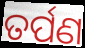
ତର୍ପଣ